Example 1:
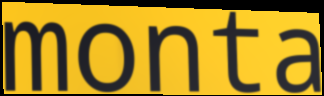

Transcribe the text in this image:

monta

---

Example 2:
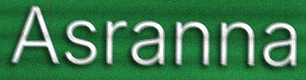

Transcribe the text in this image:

Asranna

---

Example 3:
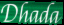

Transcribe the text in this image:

Dhada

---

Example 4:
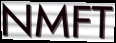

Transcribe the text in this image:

NMFT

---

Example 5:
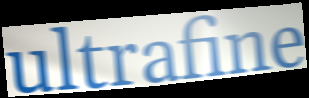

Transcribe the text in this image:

ultrafine